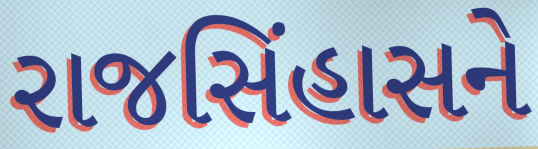
રાજસિંહાસને